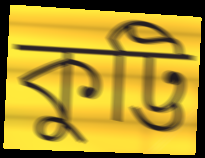
কুট্টি